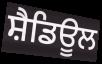
ਸ਼ੈਡਿਊਲ